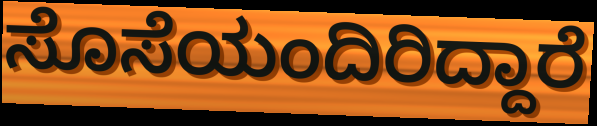
ಸೊಸೆಯಂದಿರಿದ್ದಾರೆ